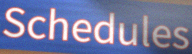
Schedules